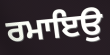
ਰਮਾਇਉ